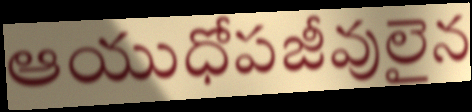
ఆయుధోపజీవులైన